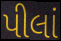
પીલાં